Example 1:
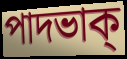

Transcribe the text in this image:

পাদভাক্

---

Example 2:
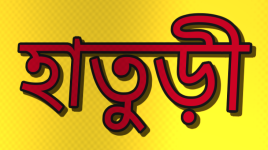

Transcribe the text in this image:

হাতুড়ী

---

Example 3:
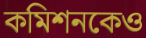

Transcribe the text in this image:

কমিশনকেও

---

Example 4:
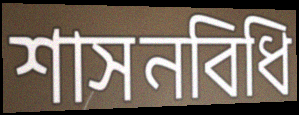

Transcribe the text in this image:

শাসনবিধি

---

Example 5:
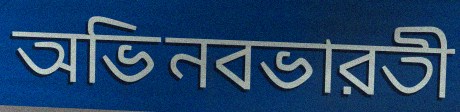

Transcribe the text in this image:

অভিনবভারতী